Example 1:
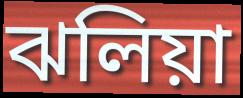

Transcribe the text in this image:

ঝলিয়া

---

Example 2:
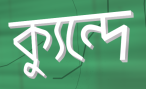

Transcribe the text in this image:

ক্যুন্দে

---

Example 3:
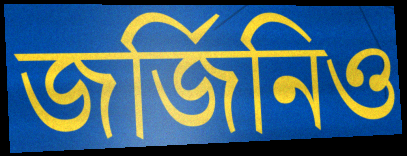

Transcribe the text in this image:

জর্জিনিও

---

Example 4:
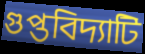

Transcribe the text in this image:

গুপ্তবিদ্যাটি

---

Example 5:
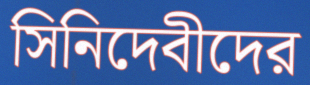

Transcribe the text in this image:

সিনিদেবীদের